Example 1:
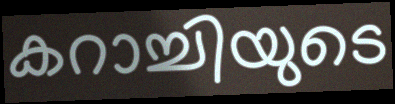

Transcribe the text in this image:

കറാച്ചിയുടെ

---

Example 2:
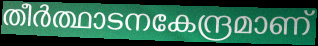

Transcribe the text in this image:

തീർത്ഥാടനകേന്ദ്രമാണ്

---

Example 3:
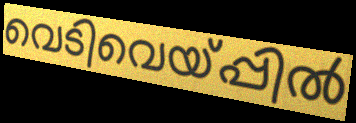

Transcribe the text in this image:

വെടിവെയ്പ്പിൽ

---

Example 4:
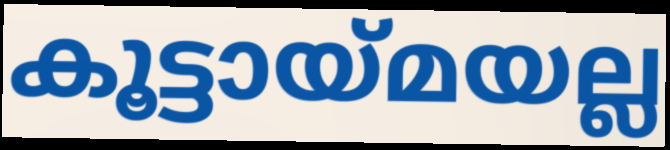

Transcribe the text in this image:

കൂട്ടായ്മയല്ല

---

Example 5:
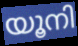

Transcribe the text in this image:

യൂനി